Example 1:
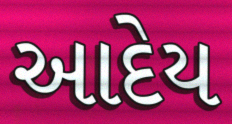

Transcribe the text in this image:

આદેય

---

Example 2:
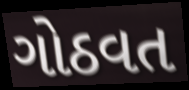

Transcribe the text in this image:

ગોઠવત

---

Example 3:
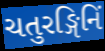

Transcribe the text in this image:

ચતુરઙ્ગિનિં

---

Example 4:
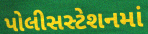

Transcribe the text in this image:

પોલીસસ્ટેશનમાં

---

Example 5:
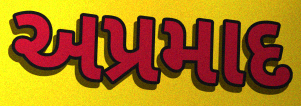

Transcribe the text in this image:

અપ્રમાદ